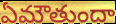
ఏమౌతుందా